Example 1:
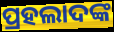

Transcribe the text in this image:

ପ୍ରହଲାଦଙ୍କ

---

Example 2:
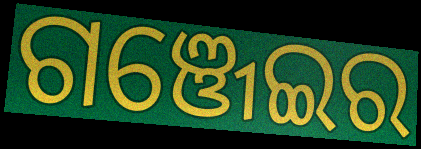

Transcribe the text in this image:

ଗଞ୍ଜେଇର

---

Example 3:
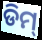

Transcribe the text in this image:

ଡିମ୍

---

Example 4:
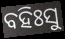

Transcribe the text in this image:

ବହିଃସୁ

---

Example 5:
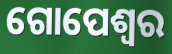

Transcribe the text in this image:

ଗୋପେଶ୍ଵର